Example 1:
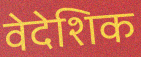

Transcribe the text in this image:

वेदेशिक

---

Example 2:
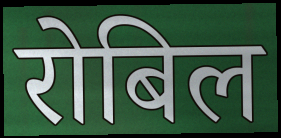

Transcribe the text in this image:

रोबिल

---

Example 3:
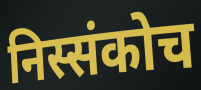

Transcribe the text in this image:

निस्संकोच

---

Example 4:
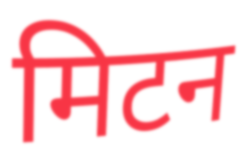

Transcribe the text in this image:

मिटन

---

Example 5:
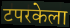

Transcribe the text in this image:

टपरकेला